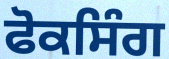
ਫੋਕਸਿੰਗ